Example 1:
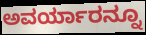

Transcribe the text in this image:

ಅವರ್ಯಾರನ್ನೂ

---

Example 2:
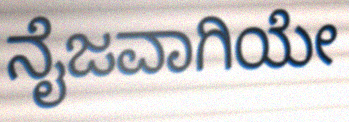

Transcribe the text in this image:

ನೈಜವಾಗಿಯೇ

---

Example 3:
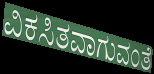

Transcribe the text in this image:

ವಿಕಸಿತವಾಗುವಂತೆ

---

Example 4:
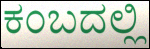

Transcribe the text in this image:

ಕಂಬದಲ್ಲಿ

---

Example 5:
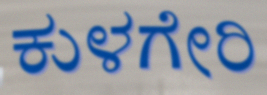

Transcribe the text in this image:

ಕುಳಗೇರಿ